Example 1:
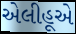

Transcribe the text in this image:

એલીહૂએ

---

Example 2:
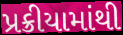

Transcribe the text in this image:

પ્રક્રીયામાંથી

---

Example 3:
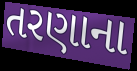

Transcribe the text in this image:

તરણાના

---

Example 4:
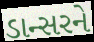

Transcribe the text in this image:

ડાન્સરને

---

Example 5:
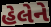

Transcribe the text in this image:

હેલેને